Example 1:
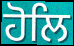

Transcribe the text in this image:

ਹੋਲਿ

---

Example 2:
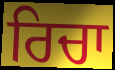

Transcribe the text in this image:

ਰਿਚਾ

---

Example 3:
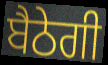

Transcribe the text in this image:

ਬੈਠੇਗੀ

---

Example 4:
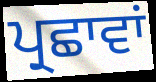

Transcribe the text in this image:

ਪ੍ਰਛਾਵਾਂ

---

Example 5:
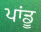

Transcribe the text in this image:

ਪਾਂਡੂ